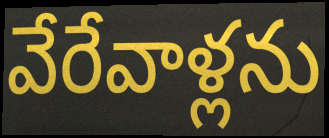
వేరేవాళ్లను